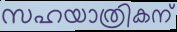
സഹയാത്രികന്